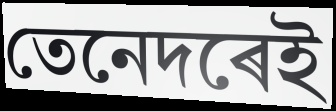
তেনেদৰেই